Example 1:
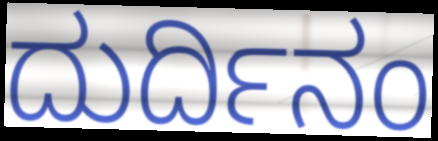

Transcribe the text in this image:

ದುರ್ದಿನಂ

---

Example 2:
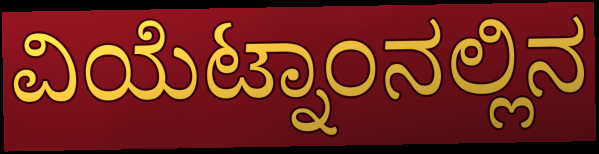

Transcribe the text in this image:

ವಿಯೆಟ್ನಾಂನಲ್ಲಿನ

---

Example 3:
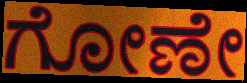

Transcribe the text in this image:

ಗೋಣೇ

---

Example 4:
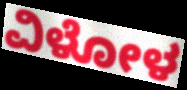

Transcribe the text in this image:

ವಿಳೋಳ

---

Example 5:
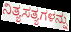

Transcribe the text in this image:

ನಿತ್ಯಸತ್ಯಗಳನ್ನು